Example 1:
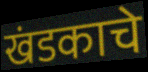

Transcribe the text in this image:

खंडकाचे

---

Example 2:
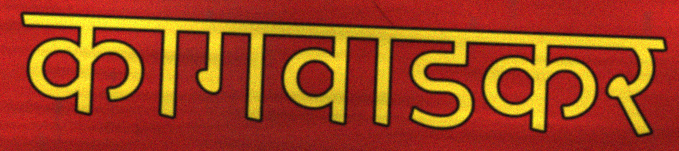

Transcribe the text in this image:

कागवाडकर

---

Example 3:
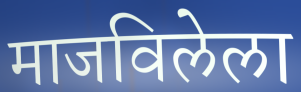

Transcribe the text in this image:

माजविलेला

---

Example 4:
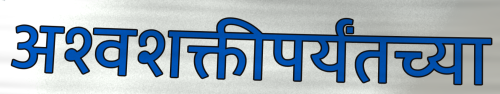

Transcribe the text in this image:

अश्वशक्तीपर्यंतच्या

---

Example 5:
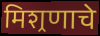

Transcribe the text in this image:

मिश्रणाचे